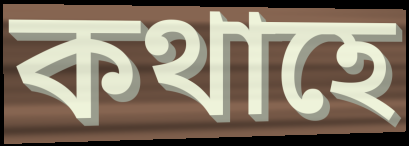
কথাহে